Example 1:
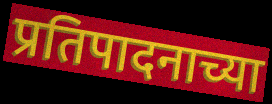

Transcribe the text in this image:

प्रतिपादनाच्या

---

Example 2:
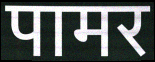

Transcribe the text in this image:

पामर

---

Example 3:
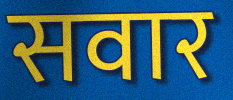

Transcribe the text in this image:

सवार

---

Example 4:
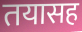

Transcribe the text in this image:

तयासह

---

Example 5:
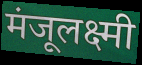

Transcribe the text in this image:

मंजूलक्ष्मी